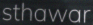
sthawar